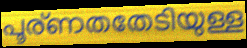
പൂര്ണതതേടിയുള്ള